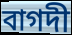
বাগদী